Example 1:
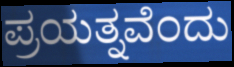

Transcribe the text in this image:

ಪ್ರಯತ್ನವೆಂದು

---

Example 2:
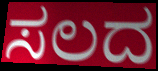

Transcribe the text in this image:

ಸಲದ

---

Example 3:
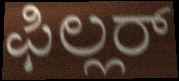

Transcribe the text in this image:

ಫಿಲ್ಲರ್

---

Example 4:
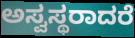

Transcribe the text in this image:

ಅಸ್ವಸ್ಥರಾದರೆ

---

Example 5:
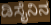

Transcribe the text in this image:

ಡಿಸೈನಿನ